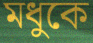
মধুকে